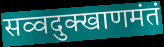
सव्वदुक्खाणमंतं